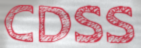
CDSS